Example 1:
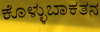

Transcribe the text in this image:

ಕೊಳ್ಳುಬಾಕತನ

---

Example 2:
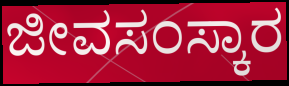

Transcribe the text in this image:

ಜೀವಸಂಸ್ಕಾರ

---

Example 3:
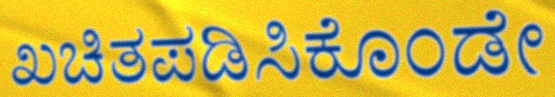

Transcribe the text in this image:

ಖಚಿತಪಡಿಸಿಕೊಂಡೇ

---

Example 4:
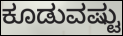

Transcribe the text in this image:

ಕೂಡುವಷ್ಟು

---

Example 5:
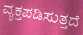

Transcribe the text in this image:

ವ್ಯಕ್ತಪಡಿಸುತ್ತದೆ